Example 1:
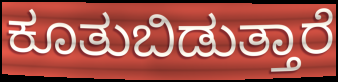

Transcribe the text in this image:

ಕೂತುಬಿಡುತ್ತಾರೆ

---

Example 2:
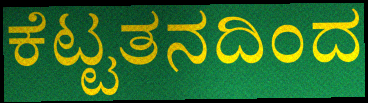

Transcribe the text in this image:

ಕೆಟ್ಟತನದಿಂದ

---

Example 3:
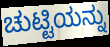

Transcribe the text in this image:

ಚುಟ್ಟಿಯನ್ನು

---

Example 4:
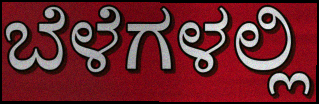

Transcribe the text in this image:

ಬೆಳೆಗಳಲ್ಲಿ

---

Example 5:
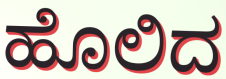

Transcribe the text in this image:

ಹೊಲಿದ